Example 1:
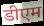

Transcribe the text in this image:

डीएम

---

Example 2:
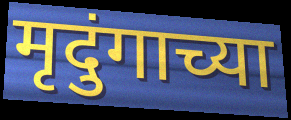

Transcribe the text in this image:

मृदुंगाच्या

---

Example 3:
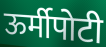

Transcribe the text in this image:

ऊर्मीपोटी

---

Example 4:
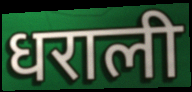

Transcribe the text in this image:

धराली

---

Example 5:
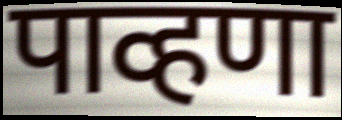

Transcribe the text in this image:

पाव्हणा